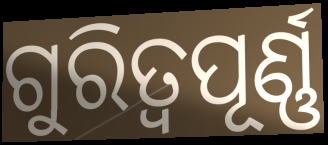
ଗୁରିତ୍ୱପୂର୍ଣ୍ଣ